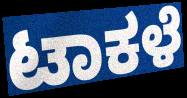
ಟಾಕಳೆ